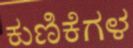
ಕುಣಿಕೆಗಳ